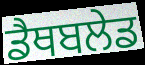
ਡੈਥਬਲੇਡ